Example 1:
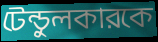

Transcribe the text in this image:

টেন্ডুলকারকে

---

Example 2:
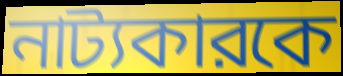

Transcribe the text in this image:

নাট্যকারকে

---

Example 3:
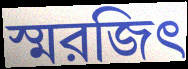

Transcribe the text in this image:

স্মরজিৎ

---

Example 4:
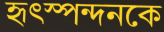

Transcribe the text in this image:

হৃৎস্পন্দনকে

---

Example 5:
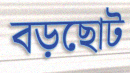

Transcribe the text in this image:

বড়ছোট